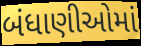
બંધાણીઓમાં